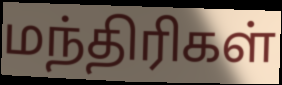
மந்திரிகள்